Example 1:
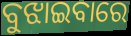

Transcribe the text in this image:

ବୁଝାଇବାରେ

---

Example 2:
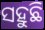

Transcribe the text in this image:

ସହୁଛି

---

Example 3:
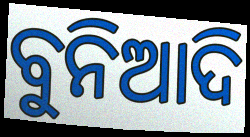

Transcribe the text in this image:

ବୁନିଆଦି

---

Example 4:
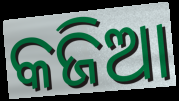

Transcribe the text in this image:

କଜିଆ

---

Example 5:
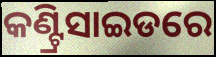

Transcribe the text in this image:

କଣ୍ଟ୍ରିସାଇଡରେ